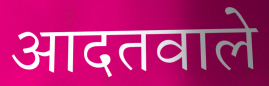
आदतवाले